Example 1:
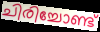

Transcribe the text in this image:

ചിരിച്ചോണ്ട്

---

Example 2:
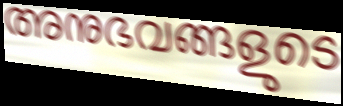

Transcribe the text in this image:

അനുഭവങ്ങളുടെ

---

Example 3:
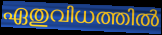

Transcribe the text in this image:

ഏതുവിധത്തിൽ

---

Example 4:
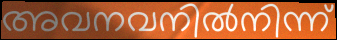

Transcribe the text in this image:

അവനവനിൽനിന്ന്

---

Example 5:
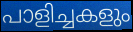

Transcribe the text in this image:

പാളിച്ചകളും